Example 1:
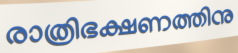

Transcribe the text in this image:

രാത്രിഭക്ഷണത്തിനു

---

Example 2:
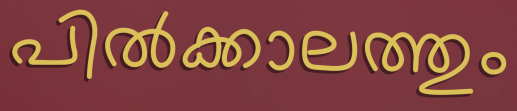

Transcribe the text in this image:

പിൽക്കാലത്തും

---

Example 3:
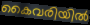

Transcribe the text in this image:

കൈവരിയിൽ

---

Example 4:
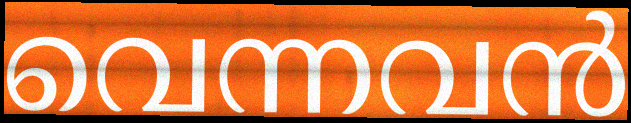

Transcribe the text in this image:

വെന്നവൻ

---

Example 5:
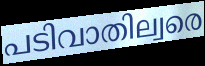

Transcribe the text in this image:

പടിവാതില്വരെ